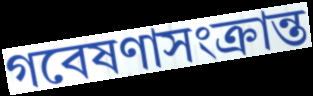
গবেষণাসংক্রান্ত